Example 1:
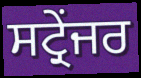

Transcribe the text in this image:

ਸਟ੍ਰੇਂਜਰ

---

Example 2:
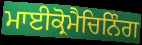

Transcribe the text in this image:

ਮਾਈਕ੍ਰੋਮੈਚਿਨਿੰਗ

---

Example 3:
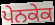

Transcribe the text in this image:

ਪੇਨਕੇਕ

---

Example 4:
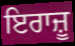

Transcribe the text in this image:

ਇਰਾਜ਼ੂ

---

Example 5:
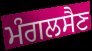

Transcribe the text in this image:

ਮੰਗਲਸੈਣ